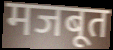
मजबूत